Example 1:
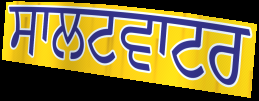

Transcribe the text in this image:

ਸਾਲਟਵਾਟਰ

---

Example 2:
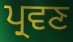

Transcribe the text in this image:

ਪ੍ਰਵਣ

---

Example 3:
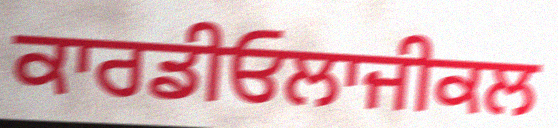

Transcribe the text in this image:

ਕਾਰਡੀਓਲਾਜੀਕਲ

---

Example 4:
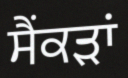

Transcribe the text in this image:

ਸੈਂਕੜਾਂ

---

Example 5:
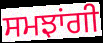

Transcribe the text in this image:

ਸਮਝਾਂਗੀ